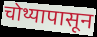
चोथ्यापासून